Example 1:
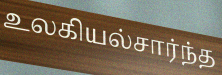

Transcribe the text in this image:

உலகியல்சார்ந்த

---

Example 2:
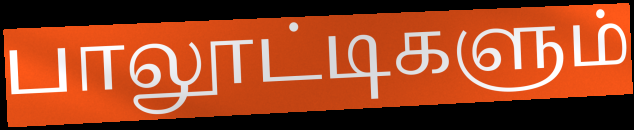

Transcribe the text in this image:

பாலூட்டிகளும்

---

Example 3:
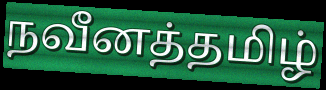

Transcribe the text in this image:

நவீனத்தமிழ்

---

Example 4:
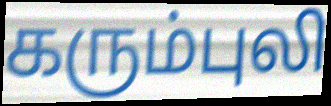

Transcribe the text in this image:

கரும்புலி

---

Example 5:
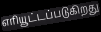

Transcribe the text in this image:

எரியூட்டப்படுகிறது